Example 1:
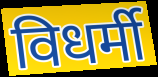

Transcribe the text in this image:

विधर्मी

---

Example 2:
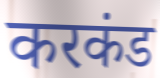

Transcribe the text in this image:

करकंड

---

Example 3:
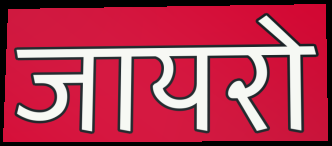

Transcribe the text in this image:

जायरो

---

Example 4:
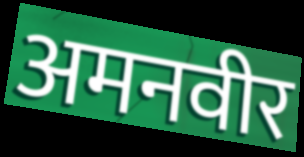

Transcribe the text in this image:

अमनवीर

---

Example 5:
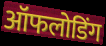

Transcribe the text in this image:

ऑफलोडिंग